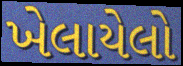
ખેલાયેલો